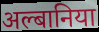
अल्बानिया